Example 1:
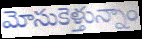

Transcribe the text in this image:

మోసుకెళ్తున్నాం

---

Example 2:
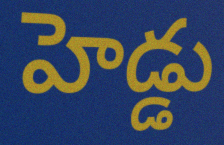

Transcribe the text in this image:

హెడ్డు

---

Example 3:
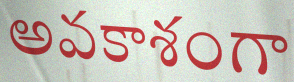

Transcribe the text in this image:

అవకాశంగా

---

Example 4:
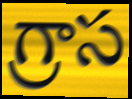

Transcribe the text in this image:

గ్రాస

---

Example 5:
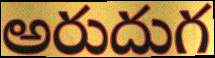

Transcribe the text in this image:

అరుదుగ